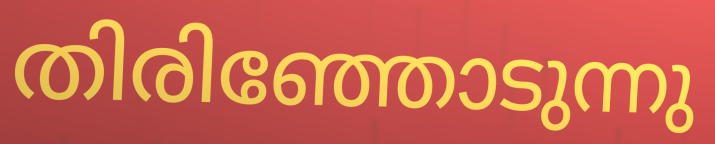
തിരിഞ്ഞോടുന്നു